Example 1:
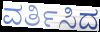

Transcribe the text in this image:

ವರ್ತಿಸಿದ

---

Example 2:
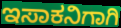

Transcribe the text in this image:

ಇಸಾಕನಿಗಾಗಿ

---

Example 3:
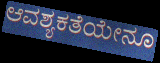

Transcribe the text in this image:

ಆವಶ್ಯಕತೆಯೇನೂ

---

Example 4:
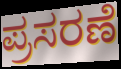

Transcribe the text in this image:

ಪ್ರಸರಣೆ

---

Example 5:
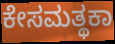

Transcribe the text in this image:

ಕೇಸಮತ್ಥಕಾ